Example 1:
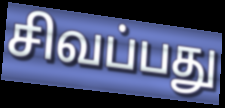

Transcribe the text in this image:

சிவப்பது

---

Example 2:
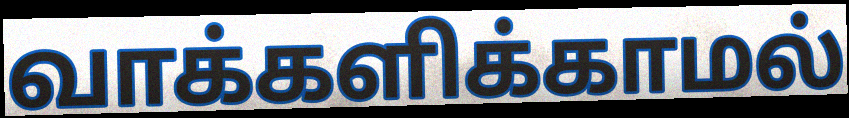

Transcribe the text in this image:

வாக்களிக்காமல்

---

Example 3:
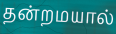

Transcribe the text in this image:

தன்றமயால்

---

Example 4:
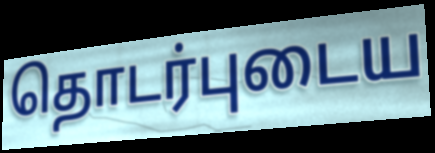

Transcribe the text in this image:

தொடர்புடைய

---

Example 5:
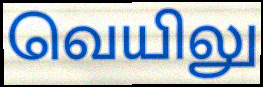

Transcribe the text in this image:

வெயிலு